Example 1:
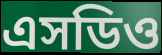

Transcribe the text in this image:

এসডিও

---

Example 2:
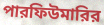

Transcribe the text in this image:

পারফিউমারির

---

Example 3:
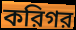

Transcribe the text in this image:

করিগর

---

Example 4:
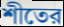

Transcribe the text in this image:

শীতের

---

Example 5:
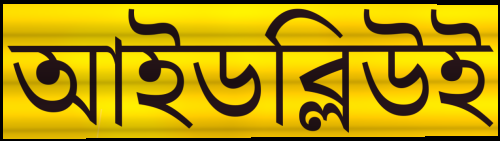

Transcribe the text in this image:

আইডব্লিউই